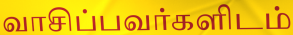
வாசிப்பவர்களிடம்